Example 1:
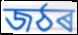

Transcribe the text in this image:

জঠৰ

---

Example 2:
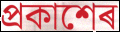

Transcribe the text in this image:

প্ৰকাশেৰ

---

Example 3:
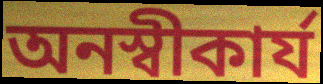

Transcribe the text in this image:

অনস্বীকাৰ্য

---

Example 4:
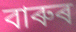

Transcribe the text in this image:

বাৰুৰ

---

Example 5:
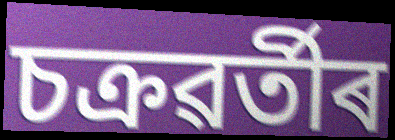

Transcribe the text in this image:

চক্ৰৱৰ্তীৰ